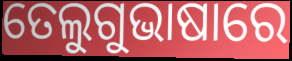
ତେଲୁଗୁଭାଷାରେ